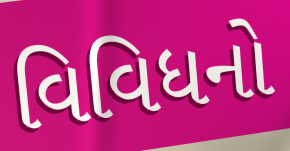
વિવિધનો